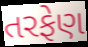
તરફેણ